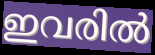
ഇവരിൽ